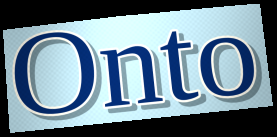
Onto